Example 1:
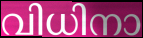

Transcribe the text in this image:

വിധിനാ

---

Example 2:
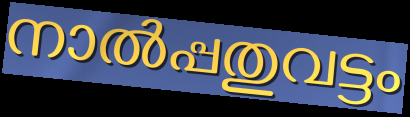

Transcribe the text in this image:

നാൽപ്പതുവട്ടം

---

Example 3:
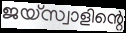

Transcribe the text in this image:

ജയ്സ്വാളിന്റെ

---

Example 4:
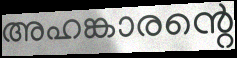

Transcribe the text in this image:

അഹങ്കാരന്റെ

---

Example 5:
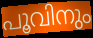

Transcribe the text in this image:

പൂവിനും